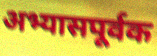
अभ्यासपूर्वक